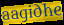
aagidhe